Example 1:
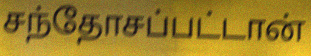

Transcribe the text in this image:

சந்தோசப்பட்டான்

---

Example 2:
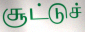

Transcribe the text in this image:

சூட்டுச்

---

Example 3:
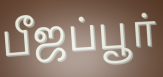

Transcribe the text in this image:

பீஜப்பூர்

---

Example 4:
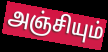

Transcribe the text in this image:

அஞ்சியும்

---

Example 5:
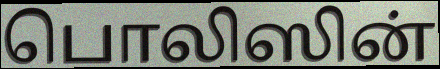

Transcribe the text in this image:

பொலிஸின்